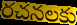
రచనలకు